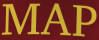
MAP